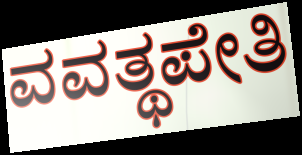
ವವತ್ಥಪೇತಿ